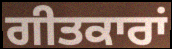
ਗੀਤਕਾਰਾਂ